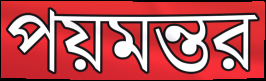
পয়মন্তর